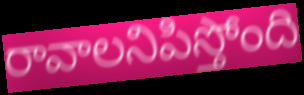
రావాలనిపిస్తోంది